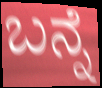
ಬನ್ನೆ